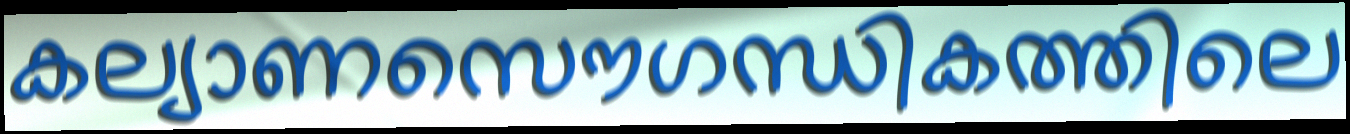
കല്യാണസൌഗന്ധികത്തിലെ